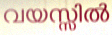
വയസ്സിൽ